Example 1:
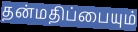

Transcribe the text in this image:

தன்மதிப்பையும்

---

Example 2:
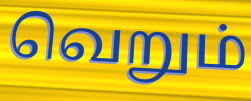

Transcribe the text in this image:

வெறும்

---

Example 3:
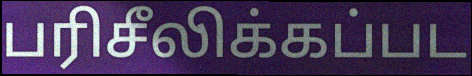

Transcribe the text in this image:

பரிசீலிக்கப்பட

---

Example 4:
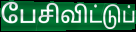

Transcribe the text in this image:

பேசிவிட்டுப்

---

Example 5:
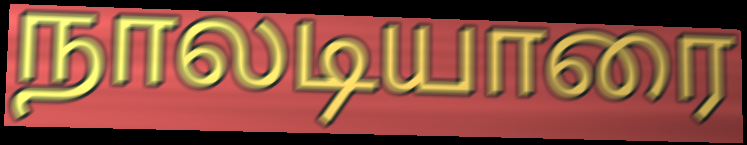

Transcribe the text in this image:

நாலடியாரை